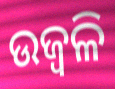
ଉଜ୍ୱଳି